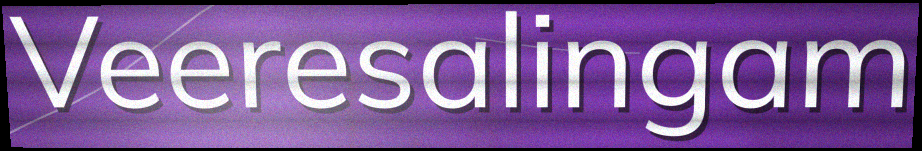
Veeresalingam